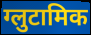
ग्लुटामिक